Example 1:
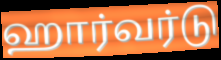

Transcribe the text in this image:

ஹார்வர்டு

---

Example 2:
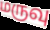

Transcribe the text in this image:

மருவு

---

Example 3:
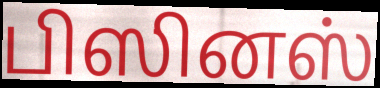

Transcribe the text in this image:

பிஸினஸ்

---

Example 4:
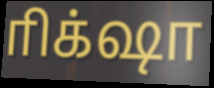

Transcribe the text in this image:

ரிக்‌ஷா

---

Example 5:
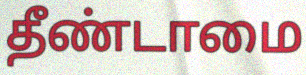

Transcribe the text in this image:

தீண்டாமை